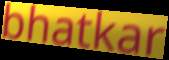
bhatkar